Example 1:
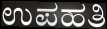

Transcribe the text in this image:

ಉಪಹತಿ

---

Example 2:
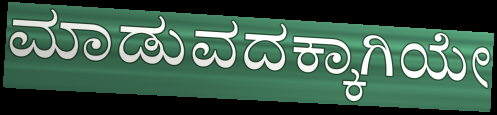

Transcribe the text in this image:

ಮಾಡುವದಕ್ಕಾಗಿಯೇ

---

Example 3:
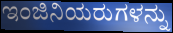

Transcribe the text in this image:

ಇಂಜಿನಿಯರುಗಳನ್ನು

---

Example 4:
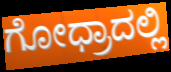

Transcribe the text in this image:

ಗೋಧ್ರಾದಲ್ಲಿ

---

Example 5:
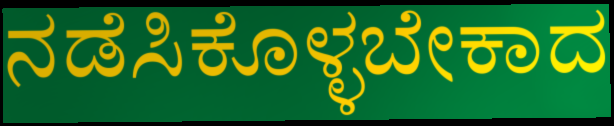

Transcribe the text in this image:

ನಡೆಸಿಕೊಳ್ಳಬೇಕಾದ